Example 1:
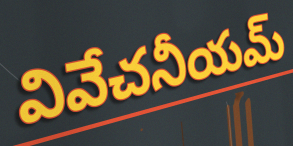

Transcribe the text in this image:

వివేచనీయమ్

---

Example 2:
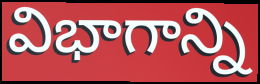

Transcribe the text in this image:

విభాగాన్ని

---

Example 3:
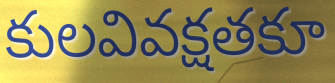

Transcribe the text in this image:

కులవివక్షతకూ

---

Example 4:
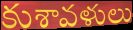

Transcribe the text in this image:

కుశావళులు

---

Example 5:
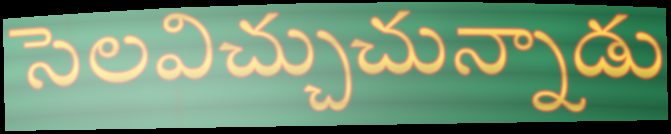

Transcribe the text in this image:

సెలవిచ్చుచున్నాడు